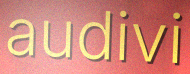
audivi